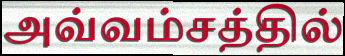
அவ்வம்சத்தில்